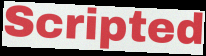
Scripted